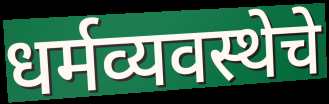
धर्मव्यवस्थेचे